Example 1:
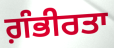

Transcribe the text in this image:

ਗ਼ੰਭੀਰਤਾ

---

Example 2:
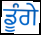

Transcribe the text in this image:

ਡੂੰਗੇ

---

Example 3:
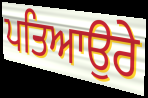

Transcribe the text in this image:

ਪਤਿਆਉਰੇ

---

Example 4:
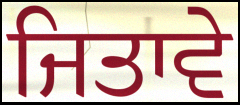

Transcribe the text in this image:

ਜਿਤਾਵੇ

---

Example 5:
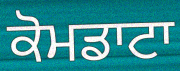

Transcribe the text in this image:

ਕੋਮਡਾਟਾ